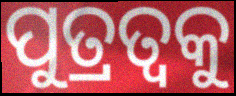
ପୁତ୍ରତ୍ଵକୁ